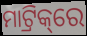
ମାଟ୍ରିକ୍‌ରେ